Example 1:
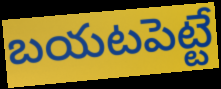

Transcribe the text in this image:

బయటపెట్టే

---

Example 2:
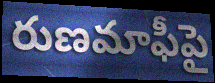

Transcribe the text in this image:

రుణమాఫీపై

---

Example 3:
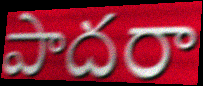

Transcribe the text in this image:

పాదరా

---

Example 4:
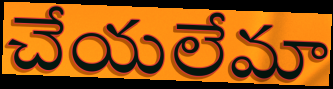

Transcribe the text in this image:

చేయలేమా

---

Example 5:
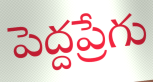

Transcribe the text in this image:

పెద్దప్రేగు